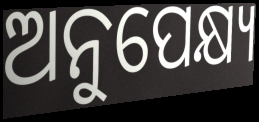
ଅନୁପେକ୍ଷ୍ୟ